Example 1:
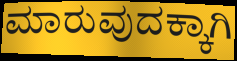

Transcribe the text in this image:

ಮಾರುವುದಕ್ಕಾಗಿ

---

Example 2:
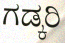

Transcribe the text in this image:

ಗಡ್ಕರಿ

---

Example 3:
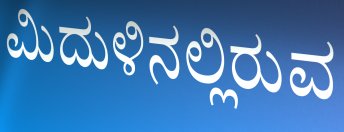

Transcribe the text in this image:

ಮಿದುಳಿನಲ್ಲಿರುವ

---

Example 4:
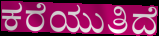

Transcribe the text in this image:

ಕರೆಯುತಿದೆ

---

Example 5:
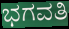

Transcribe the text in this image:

ಭಗವತಿ